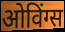
ओविंग्स